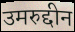
उमरुद्दीन